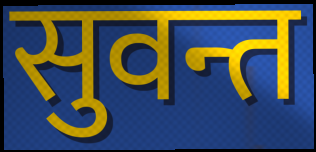
सुवन्त